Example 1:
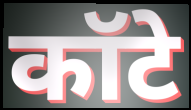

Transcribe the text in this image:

कॉटे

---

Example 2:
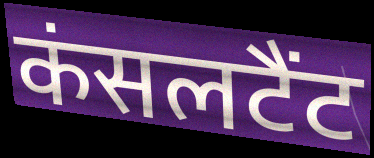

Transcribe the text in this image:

कंसलटैंट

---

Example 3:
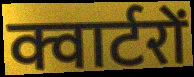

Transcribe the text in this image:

क्वार्टरों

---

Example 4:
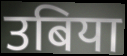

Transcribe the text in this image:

उबिया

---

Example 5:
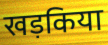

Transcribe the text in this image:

खड़किया